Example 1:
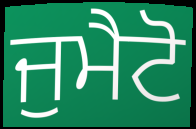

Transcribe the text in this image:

ਜੁਮੈਟੋ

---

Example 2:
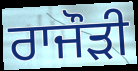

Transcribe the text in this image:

ਰਾਜੌੜੀ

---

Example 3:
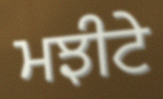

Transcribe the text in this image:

ਮਝੀਟੇ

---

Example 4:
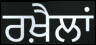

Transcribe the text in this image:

ਰਖ਼ੈਲਾਂ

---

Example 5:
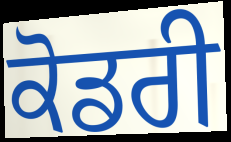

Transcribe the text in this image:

ਕੋਡਰੀ